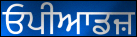
ਓਪੀਆਡਜ਼